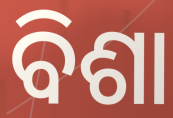
ବିଶା